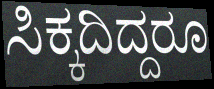
ಸಿಕ್ಕದಿದ್ದರೂ